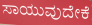
ಸಾಯುವುದೇಕೆ